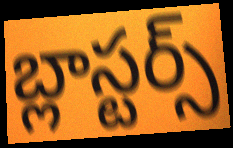
బ్లాస్టర్స్